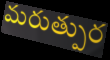
మరుత్పుర